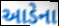
આડેના